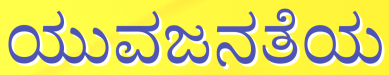
ಯುವಜನತೆಯ